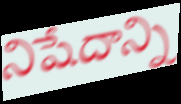
నిషేదాన్ని